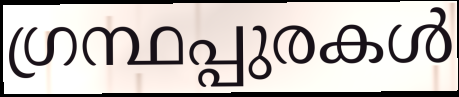
ഗ്രന്ഥപ്പുരകൾ